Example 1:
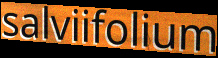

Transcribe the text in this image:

salviifolium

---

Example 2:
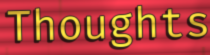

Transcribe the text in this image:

Thoughts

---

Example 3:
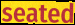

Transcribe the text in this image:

seated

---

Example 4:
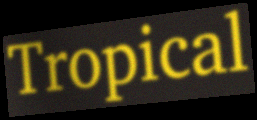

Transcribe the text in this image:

Tropical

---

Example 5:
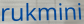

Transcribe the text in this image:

rukmini